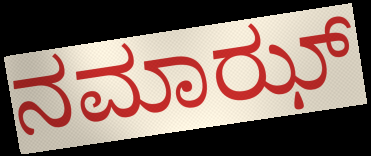
ನಮಾಝ್